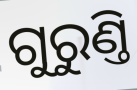
ଗୁରୁଣ୍ତି